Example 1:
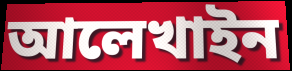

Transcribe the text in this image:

আলেখাইন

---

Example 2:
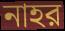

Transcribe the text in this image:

নাহর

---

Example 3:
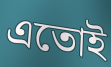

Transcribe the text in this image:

এতোই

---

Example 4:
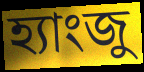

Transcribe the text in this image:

হ্যাংজু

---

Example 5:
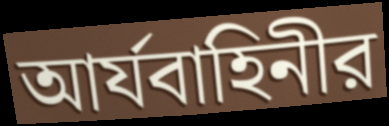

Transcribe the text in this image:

আর্যবাহিনীর